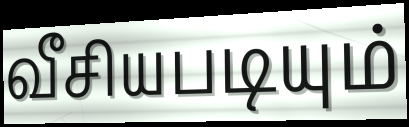
வீசியபடியும்